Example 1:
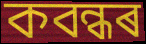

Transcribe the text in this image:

কবন্ধৰ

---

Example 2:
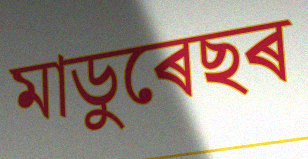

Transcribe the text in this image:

মাডুৰেছৰ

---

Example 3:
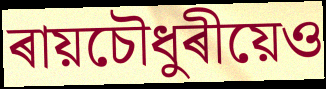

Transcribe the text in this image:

ৰায়চৌধুৰীয়েও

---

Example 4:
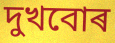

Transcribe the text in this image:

দুখবোৰ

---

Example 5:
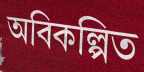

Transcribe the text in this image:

অবিকল্পিত